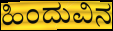
ಹಿಂದುವಿನ